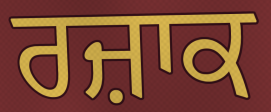
ਰਜ਼ਾਕ